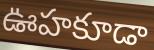
ఊహకూడా